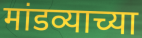
मांडव्याच्या